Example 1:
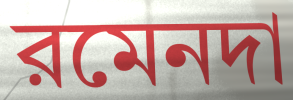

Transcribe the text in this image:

রমেনদা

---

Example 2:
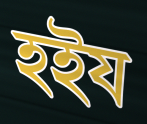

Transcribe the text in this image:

হইয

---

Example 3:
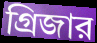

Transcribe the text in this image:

গ্রিজার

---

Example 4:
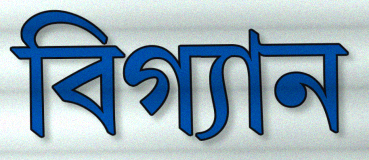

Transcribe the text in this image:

বিগ্যান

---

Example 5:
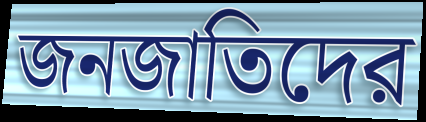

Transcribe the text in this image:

জনজাতিদের